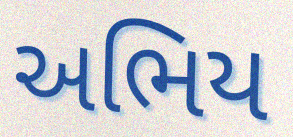
અભિય